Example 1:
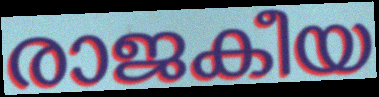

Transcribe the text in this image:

രാജകീയ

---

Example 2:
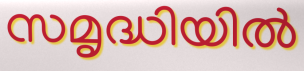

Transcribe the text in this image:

സമൃദ്ധിയിൽ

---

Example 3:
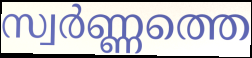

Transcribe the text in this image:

സ്വർണ്ണത്തെ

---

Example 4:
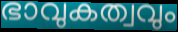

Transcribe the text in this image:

ഭാവുകത്വവും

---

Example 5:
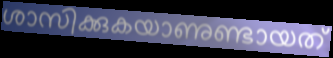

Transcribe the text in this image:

ശാസിക്കുകയാണുണ്ടായത്